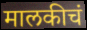
मालकीचं